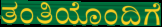
ತಂತಿಯೊಂದಿಗೆ